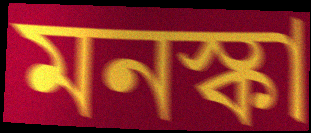
মনস্কা